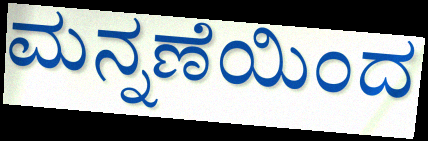
ಮನ್ನಣೆಯಿಂದ